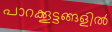
പാറക്കൂട്ടങ്ങളിൽ